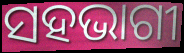
ସହଭାଗୀ